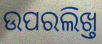
ଉପରଲିଖ୍ତ